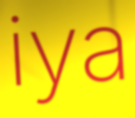
iya